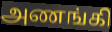
அணங்கி